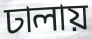
ঢালায়